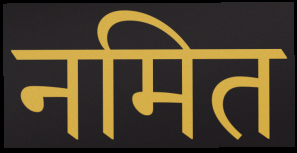
नमित